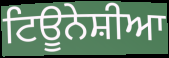
ਟਿਊਨੇਸ਼ੀਆ